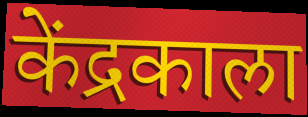
केंद्रकाला